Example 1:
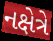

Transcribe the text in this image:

નક્ષેત્રે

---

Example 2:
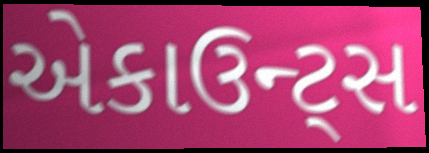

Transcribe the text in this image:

એકાઉન્ટ્સ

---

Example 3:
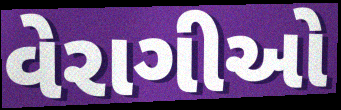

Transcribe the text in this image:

વેરાગીઓ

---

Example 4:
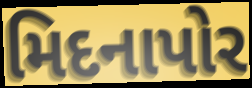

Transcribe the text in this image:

મિદનાપોર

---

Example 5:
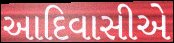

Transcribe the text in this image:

આદિવાસીએ